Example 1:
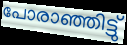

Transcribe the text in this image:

പോരാഞ്ഞിട്ടു്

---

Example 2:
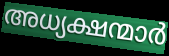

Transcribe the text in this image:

അധ്യക്ഷന്മാർ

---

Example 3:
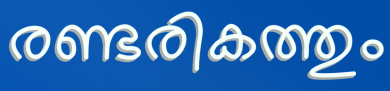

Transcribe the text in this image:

രണ്ടരികത്തും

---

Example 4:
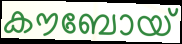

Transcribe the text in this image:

കൗബോയ്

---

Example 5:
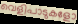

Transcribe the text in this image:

വെളിപാടുകളോ